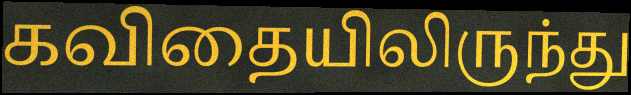
கவிதையிலிருந்து